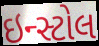
ઇન્સ્ટોલ